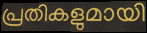
പ്രതികളുമായി